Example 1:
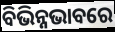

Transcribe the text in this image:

ବିଭିନ୍ନଭାବରେ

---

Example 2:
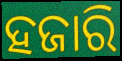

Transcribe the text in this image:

ହଜାରି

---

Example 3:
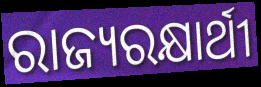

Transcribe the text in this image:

ରାଜ୍ୟରକ୍ଷାର୍ଥୀ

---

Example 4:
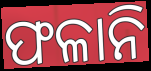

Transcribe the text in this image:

ଫଳାନି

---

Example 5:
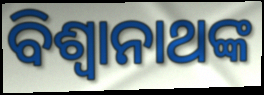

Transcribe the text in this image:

ବିଶ୍ୱାନାଥଙ୍କ